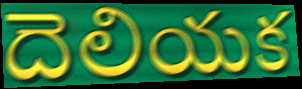
దెలియక